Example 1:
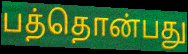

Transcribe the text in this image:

பத்தொன்பது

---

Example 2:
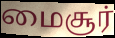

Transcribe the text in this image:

மைசூர்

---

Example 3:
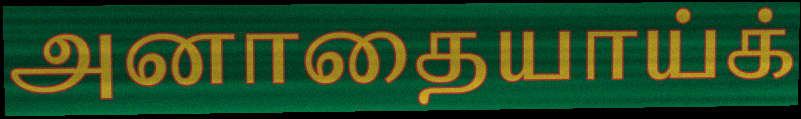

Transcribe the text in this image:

அனாதையாய்க்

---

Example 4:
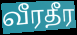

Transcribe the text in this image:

வீரதீர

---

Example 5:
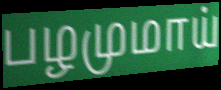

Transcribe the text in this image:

பழமுமாய்